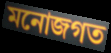
মনোজগত